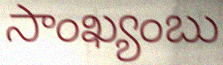
సాంఖ్యంబు